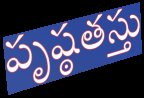
పృష్ఠతస్తు